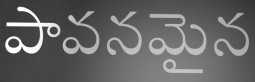
పావనమైన